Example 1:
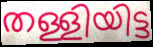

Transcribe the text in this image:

തള്ളിയിട്ട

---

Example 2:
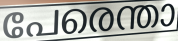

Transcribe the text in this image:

പേരെന്താ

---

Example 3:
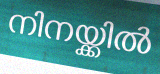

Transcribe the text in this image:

നിനയ്ക്കിൽ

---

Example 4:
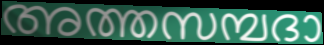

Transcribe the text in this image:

അത്തസമ്പദാ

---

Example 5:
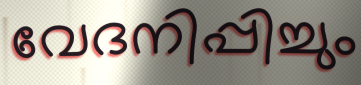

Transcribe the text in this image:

വേദനിപ്പിച്ചും